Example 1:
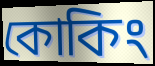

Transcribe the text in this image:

কোকিং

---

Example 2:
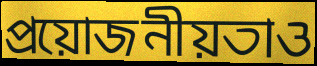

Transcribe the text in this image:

প্রয়োজনীয়তাও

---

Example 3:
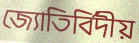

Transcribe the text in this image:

জ্যোতির্বিদীয়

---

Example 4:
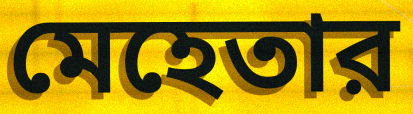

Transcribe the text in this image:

মেহেতার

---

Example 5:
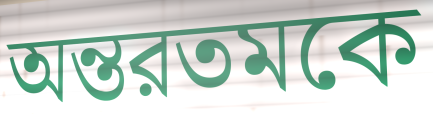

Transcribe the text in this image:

অন্তরতমকে